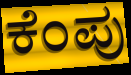
ಕೆಂಪು